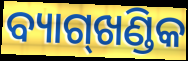
ବ୍ୟାଗ୍‌ଖଣ୍ଡିକ